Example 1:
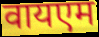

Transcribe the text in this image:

वायएम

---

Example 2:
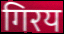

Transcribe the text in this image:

गिरय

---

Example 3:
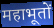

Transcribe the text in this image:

महाभूतों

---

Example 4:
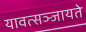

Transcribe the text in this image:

यावत्सञ्जायते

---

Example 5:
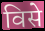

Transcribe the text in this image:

विसे